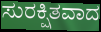
ಸುರಕ್ಷಿತವಾದ